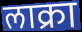
लाक्रा